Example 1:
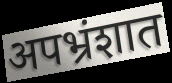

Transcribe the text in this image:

अपभ्रंशात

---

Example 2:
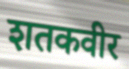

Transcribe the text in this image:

शतकवीर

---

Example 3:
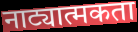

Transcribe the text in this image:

नाट्यात्मकता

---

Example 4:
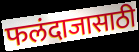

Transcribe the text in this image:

फलंदाजासाठी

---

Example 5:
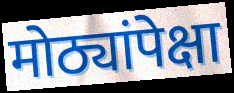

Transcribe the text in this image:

मोठ्यांपेक्षा